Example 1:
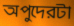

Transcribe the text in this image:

অপুদেরটা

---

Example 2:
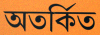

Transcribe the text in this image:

অতর্কিত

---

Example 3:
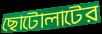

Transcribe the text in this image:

ছোটোলাটের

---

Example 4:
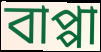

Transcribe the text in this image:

বাপ্পা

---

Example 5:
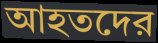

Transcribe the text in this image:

আহতদের